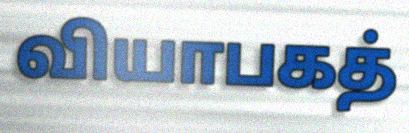
வியாபகத்